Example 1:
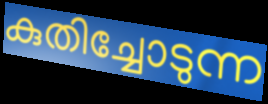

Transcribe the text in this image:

കുതിച്ചോടുന്ന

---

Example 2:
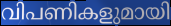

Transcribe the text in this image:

വിപണികളുമായി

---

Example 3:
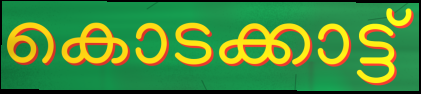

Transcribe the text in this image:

കൊടക്കാട്ട്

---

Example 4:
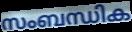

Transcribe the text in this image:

സംബന്ധിക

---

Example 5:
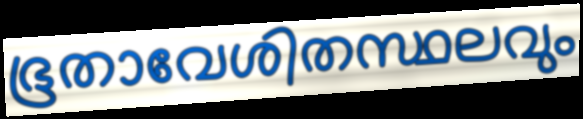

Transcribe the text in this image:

ഭൂതാവേശിതസ്ഥലവും